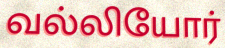
வல்லியோர்